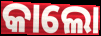
କାଲୋ